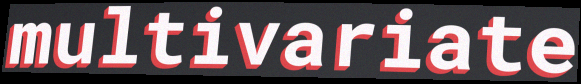
multivariate